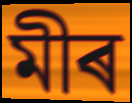
মীৰ